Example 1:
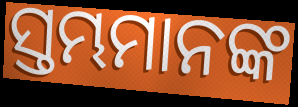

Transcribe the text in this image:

ସ୍ତମ୍ଭମାନଙ୍କ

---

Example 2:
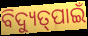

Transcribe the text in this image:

ବିଦ୍ୟୁତ୍‌ପାଇଁ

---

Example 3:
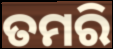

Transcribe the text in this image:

ତମରି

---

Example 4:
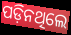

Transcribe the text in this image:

ପଡ଼ିନଥିଲେ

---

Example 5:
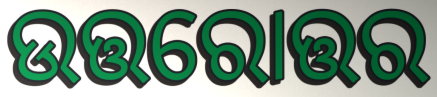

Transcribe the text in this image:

ଉତ୍ତରୋତ୍ତର